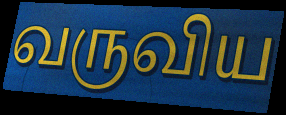
வருவிய